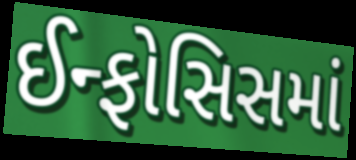
ઈન્ફોસિસમાં